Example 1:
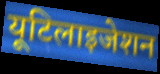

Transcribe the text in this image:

यूटिलाइजेशन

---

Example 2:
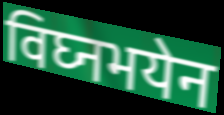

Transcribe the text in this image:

विघ्नभयेन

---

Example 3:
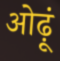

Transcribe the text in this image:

ओढ़ूं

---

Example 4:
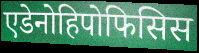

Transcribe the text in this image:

एडेनोहिपोफिसिस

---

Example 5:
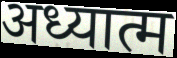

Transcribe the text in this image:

अध्यात्म